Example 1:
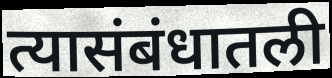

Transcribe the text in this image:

त्यासंबंधातली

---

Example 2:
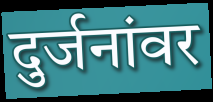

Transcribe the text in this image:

दुर्जनांवर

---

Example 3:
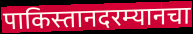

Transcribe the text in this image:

पाकिस्तानदरम्यानचा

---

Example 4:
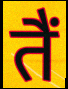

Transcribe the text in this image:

तैं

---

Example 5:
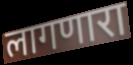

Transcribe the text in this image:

लागणारा